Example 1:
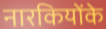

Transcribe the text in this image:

नारकियोंके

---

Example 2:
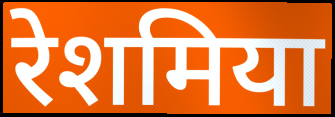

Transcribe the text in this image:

रेशमिया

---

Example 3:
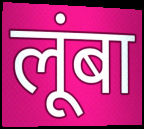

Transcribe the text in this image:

लूंबा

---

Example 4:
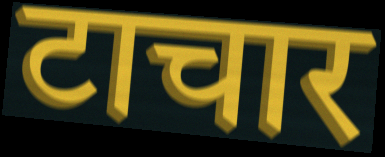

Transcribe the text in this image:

टाचार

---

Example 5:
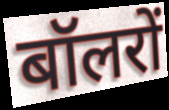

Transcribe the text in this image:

बॉलरों